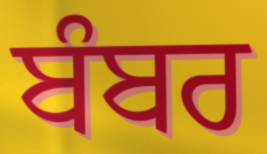
ਬੰਬਰ